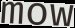
mow